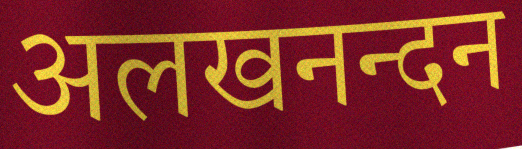
अलखनन्दन